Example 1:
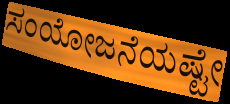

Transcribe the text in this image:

ಸಂಯೋಜನೆಯಷ್ಟೇ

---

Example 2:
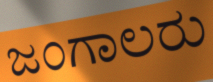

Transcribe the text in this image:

ಜಂಗಾಲರು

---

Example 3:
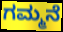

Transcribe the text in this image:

ಗಮ್ಮನೆ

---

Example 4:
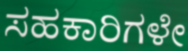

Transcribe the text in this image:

ಸಹಕಾರಿಗಳೇ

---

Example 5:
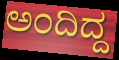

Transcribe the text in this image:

ಅಂದಿದ್ದ